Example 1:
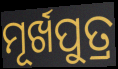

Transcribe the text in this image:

ମୂର୍ଖପୁତ୍ର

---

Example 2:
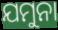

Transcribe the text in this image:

ଯମୁନା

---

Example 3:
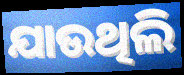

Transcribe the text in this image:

ଯାଉଥିଲି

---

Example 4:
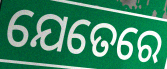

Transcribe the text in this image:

ଯେତେରେ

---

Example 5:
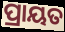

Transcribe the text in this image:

ପ୍ରାୟତ